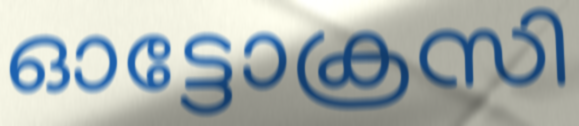
ഓട്ടോക്രസി